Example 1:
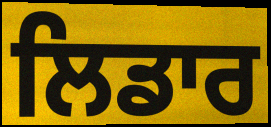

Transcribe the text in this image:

ਲਿਡਾਰ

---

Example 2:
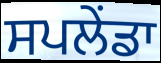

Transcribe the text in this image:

ਸਪਲੇਂਡਾ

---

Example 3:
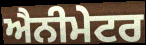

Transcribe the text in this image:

ਐਨੀਮੇਟਰ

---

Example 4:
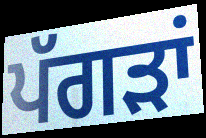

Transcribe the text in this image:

ਪੱਗੜਾਂ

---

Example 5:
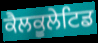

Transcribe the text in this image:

ਕੈਲਕੂਲੇਟਿਡ